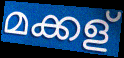
മക്കള്